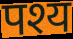
पश्य